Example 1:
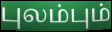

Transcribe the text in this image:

புலம்பும்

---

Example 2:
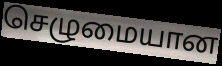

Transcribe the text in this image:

செழுமையான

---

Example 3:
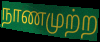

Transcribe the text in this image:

நாணமுற்ற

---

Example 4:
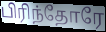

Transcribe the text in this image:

பிரிந்தோரே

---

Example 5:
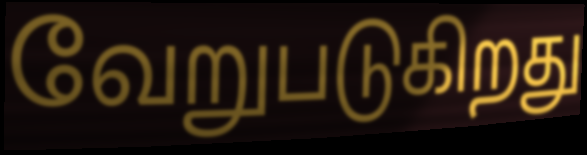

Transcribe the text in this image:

வேறுபடுகிறது